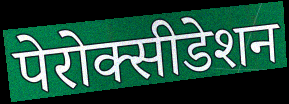
पेरोक्सीडेशन